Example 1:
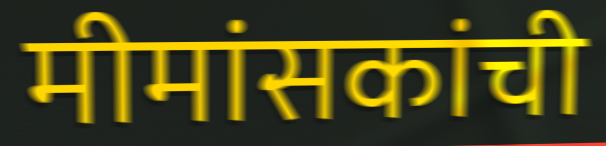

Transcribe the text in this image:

मीमांसकांची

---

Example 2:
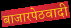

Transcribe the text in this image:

बाजारपेठवादी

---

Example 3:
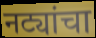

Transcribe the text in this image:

नट्यांचा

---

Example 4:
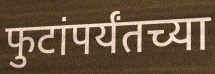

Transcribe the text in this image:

फुटांपर्यंतच्या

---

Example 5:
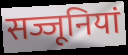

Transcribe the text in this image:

सज्जूनियां